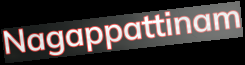
Nagappattinam